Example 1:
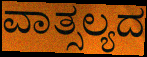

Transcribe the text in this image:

ವಾತ್ಸಲ್ಯದ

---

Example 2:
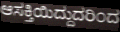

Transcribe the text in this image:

ಆಸಕ್ತಿಯಿದ್ದುದರಿಂದ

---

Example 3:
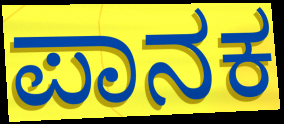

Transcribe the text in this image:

ಪಾನಕ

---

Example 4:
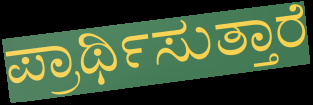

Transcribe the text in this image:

ಪ್ರಾರ್ಥಿಸುತ್ತಾರೆ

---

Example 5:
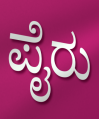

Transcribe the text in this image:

ಪೈರು